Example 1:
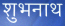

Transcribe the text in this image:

शुभनाथ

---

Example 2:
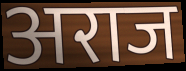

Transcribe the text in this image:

अराज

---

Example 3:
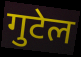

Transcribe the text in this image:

गुटेल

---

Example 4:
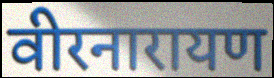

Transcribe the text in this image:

वीरनारायण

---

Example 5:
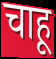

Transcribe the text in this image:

चाहू